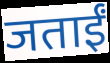
जताईं